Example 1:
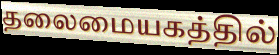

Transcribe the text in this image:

தலைமையகத்தில்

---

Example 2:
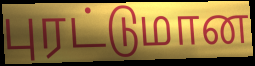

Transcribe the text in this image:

புரட்டுமான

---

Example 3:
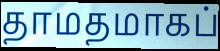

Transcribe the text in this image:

தாமதமாகப்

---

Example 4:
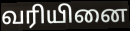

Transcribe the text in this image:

வரியினை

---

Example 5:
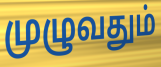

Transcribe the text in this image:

முழுவதும்